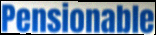
Pensionable